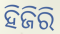
ହିଜିରି